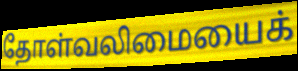
தோள்வலிமையைக்